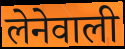
लेनेवाली